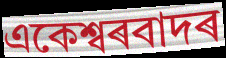
একেশ্বৰবাদৰ